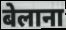
बेलाना